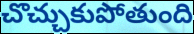
చొచ్చుకుపోతుంది